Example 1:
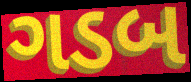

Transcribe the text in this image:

ગડબ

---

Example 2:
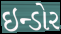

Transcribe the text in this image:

ઇન્ડોર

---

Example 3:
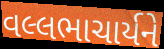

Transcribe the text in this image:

વલ્લભાચાર્યને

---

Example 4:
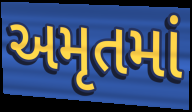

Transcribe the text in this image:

અમૃતમાં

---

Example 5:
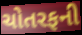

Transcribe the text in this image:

ચોતરફની